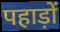
पहाड़ों